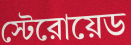
স্টেরোয়েড